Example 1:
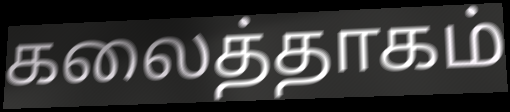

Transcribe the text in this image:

கலைத்தாகம்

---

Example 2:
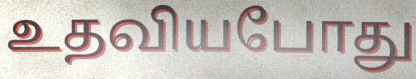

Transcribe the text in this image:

உதவியபோது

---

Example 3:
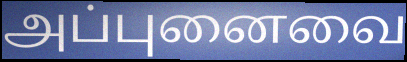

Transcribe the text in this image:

அப்புனைவை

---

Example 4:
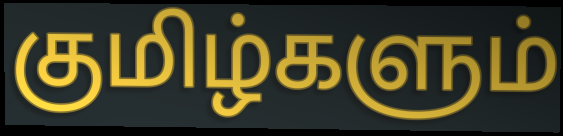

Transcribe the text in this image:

குமிழ்களும்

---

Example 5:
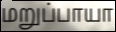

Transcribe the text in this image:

மறுப்பாயா